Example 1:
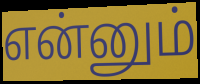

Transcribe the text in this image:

என்னும்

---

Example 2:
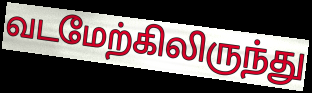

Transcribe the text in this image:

வடமேற்கிலிருந்து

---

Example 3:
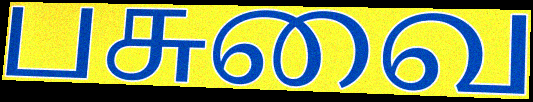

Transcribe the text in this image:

பசுவை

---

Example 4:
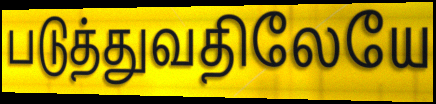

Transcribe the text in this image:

படுத்துவதிலேயே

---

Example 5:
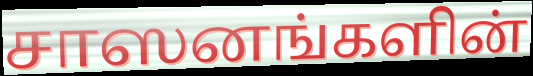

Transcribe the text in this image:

சாஸனங்களின்